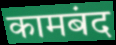
कामबंद